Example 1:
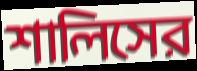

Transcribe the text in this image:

শালিসের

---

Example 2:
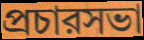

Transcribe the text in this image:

প্রচারসভা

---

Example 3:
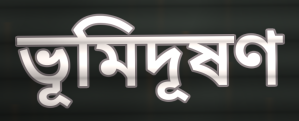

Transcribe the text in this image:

ভূমিদূষণ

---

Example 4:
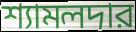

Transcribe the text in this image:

শ্যামলদার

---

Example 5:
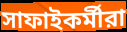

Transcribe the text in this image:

সাফাইকর্মীরা